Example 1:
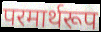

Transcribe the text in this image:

परमार्थरूप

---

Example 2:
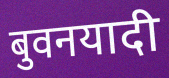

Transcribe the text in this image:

बुवनयादी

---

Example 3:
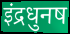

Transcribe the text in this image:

इंद्रधुनष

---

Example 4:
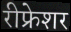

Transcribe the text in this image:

रीफ्रेशर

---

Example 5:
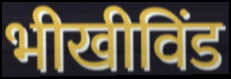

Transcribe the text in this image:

भीखीविंड